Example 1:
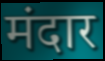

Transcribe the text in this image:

मंदार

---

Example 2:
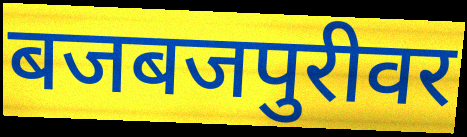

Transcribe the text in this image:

बजबजपुरीवर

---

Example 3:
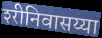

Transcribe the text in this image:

श्रीनिवासय्या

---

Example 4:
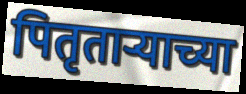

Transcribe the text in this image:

पितृताऱ्याच्या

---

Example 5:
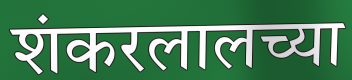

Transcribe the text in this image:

शंकरलालच्या